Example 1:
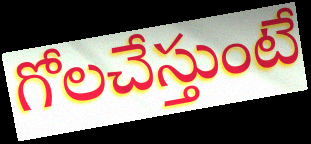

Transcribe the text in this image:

గోలచేస్తుంటే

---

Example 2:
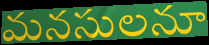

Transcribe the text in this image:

మనసులనూ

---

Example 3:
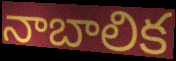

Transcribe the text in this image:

నాబాలిక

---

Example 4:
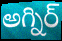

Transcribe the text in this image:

అగ్నిర్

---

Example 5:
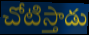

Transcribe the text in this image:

చోటిస్తాడు